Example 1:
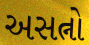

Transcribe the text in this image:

અસત્નો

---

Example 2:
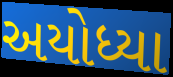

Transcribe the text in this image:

અયોધ્યા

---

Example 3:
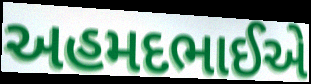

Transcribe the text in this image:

અહમદભાઈએ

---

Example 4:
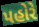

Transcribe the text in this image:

પહોરે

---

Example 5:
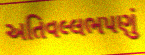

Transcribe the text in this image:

અતિવલ્લભપણું